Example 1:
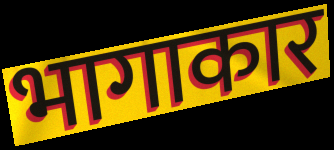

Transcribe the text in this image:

भागाकार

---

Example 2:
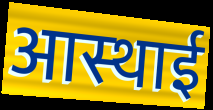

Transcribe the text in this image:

आस्थाई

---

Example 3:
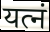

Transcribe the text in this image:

यत्नं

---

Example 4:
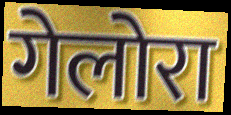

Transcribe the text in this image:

गेलोरा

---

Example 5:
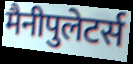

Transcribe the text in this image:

मैनीपुलेटर्स